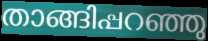
താങ്ങിപ്പറഞ്ഞു